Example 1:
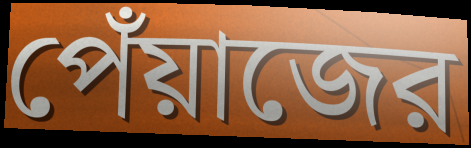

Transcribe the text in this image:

পেঁয়াজের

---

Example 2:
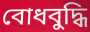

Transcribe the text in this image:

বোধবুদ্ধি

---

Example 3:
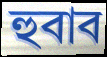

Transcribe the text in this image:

হুবাব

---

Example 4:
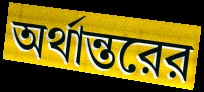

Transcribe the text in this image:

অর্থান্তরের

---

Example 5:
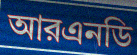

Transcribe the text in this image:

আরএনডি